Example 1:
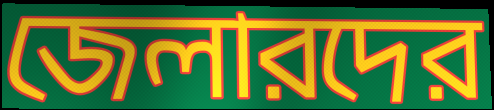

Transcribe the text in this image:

জেলারদের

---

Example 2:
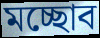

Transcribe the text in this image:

মচ্ছোব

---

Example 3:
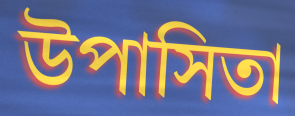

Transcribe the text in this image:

উপাসিতা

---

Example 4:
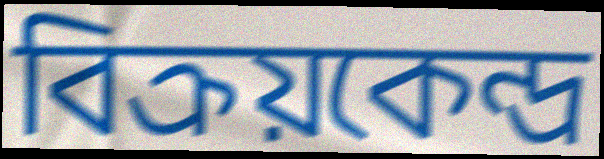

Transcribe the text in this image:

বিক্রয়কেন্দ্র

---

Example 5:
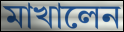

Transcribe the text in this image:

মাখালেন